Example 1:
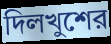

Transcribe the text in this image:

দিলখুশের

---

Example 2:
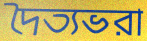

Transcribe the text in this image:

দৈত্যভরা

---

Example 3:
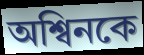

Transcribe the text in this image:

অশ্বিনকে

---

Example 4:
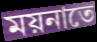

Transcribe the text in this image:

ময়নাতে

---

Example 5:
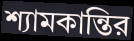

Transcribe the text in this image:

শ্যামকান্তির